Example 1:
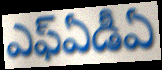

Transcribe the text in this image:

ఎఫ్ఏడీఏ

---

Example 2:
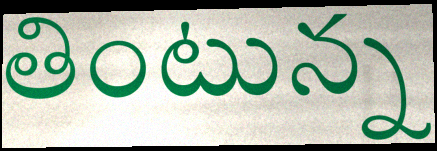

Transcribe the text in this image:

తింటున్న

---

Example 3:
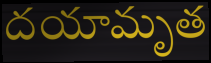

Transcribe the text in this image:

దయామృత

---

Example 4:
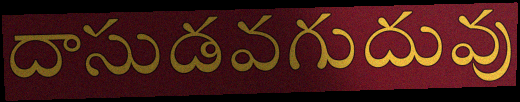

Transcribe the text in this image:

దాసుడవగుదువు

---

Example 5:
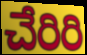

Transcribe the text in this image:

చేరిరి